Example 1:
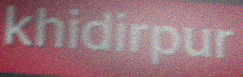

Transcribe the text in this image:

khidirpur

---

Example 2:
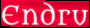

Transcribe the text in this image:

Endru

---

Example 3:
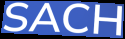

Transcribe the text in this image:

SACH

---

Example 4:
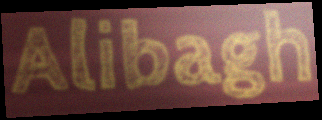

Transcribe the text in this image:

Alibagh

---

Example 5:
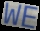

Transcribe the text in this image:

WE